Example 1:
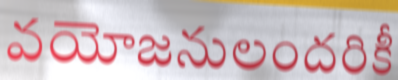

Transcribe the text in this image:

వయోజనులందరికీ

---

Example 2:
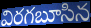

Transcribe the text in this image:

విరగబూసిన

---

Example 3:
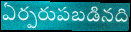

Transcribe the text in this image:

ఏర్పరుపబడినది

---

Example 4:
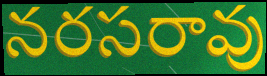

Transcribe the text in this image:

నరసరావు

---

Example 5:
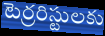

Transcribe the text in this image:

టెర్రరిస్టులకు